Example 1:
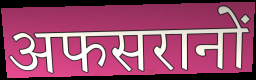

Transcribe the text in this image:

अफसरानों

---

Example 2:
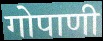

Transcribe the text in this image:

गोपाणी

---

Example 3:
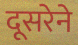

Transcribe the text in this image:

दूसरेने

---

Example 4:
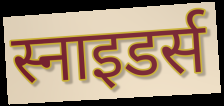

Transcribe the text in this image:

स्नाइडर्स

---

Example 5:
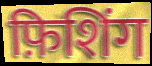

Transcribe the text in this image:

फ़िशिंग